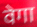
वेगा